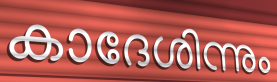
കാദേശിന്നും